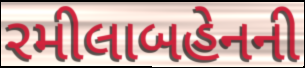
રમીલાબહેનની